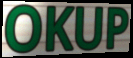
OKUP